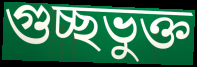
গুচ্ছভুক্ত